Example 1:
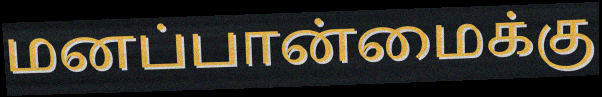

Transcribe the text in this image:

மனப்பான்மைக்கு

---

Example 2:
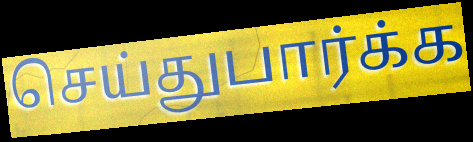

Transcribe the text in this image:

செய்துபார்க்க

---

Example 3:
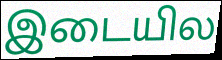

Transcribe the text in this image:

இடையில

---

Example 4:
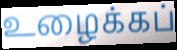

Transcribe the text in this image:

உழைக்கப்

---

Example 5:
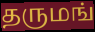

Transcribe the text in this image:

தருமங்